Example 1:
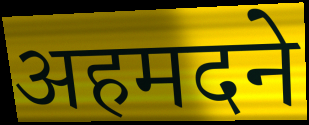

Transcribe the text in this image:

अहमदने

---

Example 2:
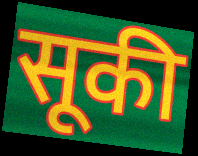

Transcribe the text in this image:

सूकी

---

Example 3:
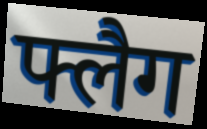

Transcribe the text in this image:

फ्लैग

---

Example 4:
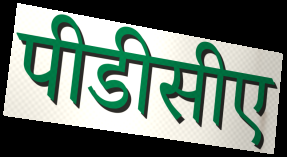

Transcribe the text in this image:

पीडीसीए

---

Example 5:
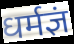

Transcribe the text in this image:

धर्मज्ञं